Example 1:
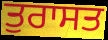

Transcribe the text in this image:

ਤੁਰਾਸਤ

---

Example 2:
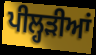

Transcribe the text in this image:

ਪੀਲ੍ਹੜੀਆਂ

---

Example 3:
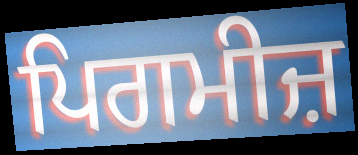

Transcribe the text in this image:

ਪਿਗਮੀਜ਼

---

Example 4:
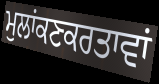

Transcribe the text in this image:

ਮੁਲਾਂਕਣਕਰਤਾਵਾਂ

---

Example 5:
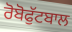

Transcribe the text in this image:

ਰੋਬੋਫੁੱਟਬਾਲ